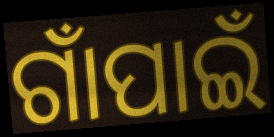
ଗାଁପାଇଁ